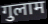
गुलाम